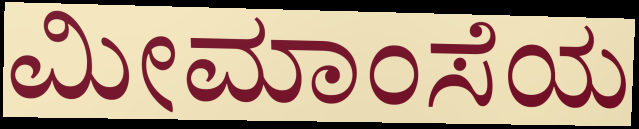
ಮೀಮಾಂಸೆಯ